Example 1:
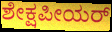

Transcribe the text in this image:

ಶೇಕ್ಷಪೀಯರ್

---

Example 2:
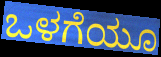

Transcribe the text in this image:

ಒಳಗೆಯೂ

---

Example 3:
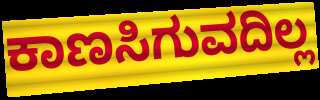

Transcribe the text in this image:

ಕಾಣಸಿಗುವದಿಲ್ಲ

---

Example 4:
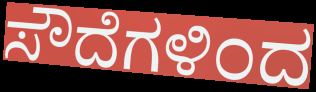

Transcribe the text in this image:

ಸೌದೆಗಳಿಂದ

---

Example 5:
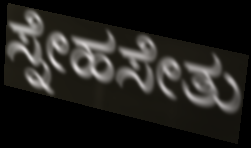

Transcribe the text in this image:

ಸ್ನೇಹಸೇತು